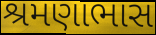
શ્રમણાભાસ